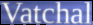
Vatchal